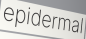
epidermal